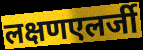
लक्षणएलर्जी